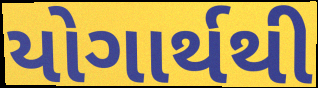
યોગાર્થથી